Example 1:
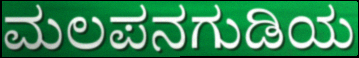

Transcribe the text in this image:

ಮಲಪನಗುಡಿಯ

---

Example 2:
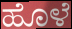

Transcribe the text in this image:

ಹೊಳೆ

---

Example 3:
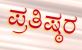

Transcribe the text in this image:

ಪ್ರತಿಷ್ಠರ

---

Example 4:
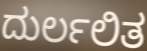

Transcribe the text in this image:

ದುರ್ಲಲಿತ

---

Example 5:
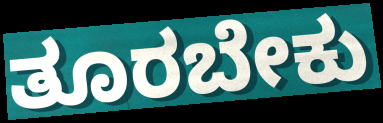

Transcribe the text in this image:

ತೂರಬೇಕು